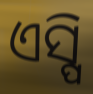
ଏସ୍ପି